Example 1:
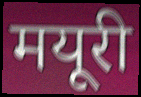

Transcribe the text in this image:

मयूरी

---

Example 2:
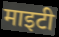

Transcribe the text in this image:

माइटी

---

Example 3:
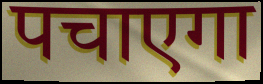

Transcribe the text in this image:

पचाएगा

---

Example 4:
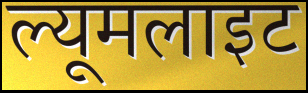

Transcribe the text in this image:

ल्यूमलाइट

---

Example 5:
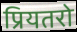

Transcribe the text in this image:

प्रियतरो